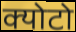
क्योटो